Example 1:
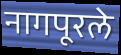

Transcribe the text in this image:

नागपूरले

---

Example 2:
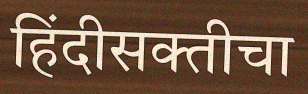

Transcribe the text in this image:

हिंदीसक्तीचा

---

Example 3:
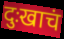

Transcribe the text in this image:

दुःखाचं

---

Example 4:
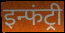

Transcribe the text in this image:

इन्फंट्री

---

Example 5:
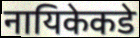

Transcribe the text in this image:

नायिकेकडे